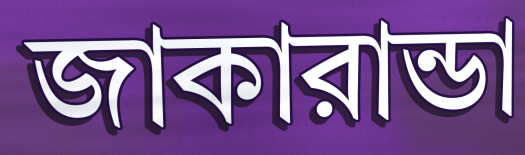
জাকারান্ডা